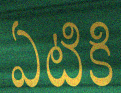
ఏటికి